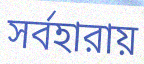
সর্বহারায়